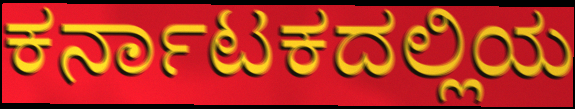
ಕರ್ನಾಟಕದಲ್ಲಿಯ